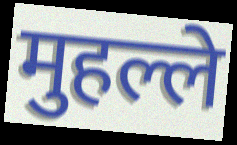
मुहल्ले